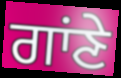
ਗਾਂਣੇ